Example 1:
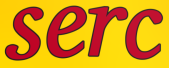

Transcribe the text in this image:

serc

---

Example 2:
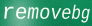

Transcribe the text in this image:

removebg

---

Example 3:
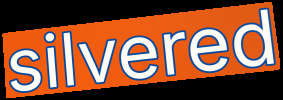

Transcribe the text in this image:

silvered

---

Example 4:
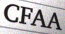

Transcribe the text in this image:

CFAA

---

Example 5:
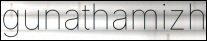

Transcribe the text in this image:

gunathamizh